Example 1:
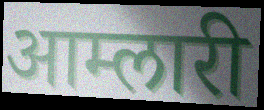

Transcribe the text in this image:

आम्लारी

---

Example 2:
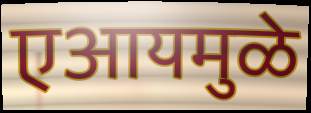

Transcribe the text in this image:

एआयमुळे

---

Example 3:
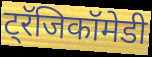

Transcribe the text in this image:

ट्रॅजिकॉमेडी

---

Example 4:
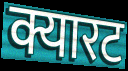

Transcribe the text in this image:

क्यारट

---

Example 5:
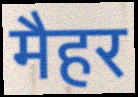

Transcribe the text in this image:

मैहर